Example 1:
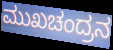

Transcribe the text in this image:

ಮುಖಚಂದ್ರನ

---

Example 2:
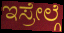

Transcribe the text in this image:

ಇಸ್ರೇಲ್ಗೆ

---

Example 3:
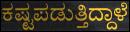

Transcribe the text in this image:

ಕಷ್ಟಪಡುತ್ತಿದ್ದಾಳೆ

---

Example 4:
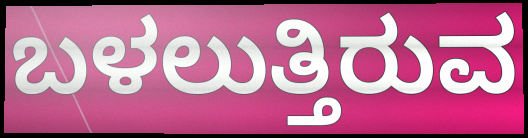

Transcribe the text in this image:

ಬಳಲುತ್ತಿರುವ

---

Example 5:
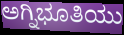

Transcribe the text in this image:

ಅಗ್ನಿಭೂತಿಯು